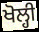
ਖੋਲ੍ਹੀ